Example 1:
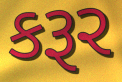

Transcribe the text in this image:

કરૂર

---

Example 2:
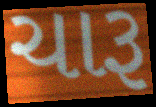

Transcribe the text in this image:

ચારૂ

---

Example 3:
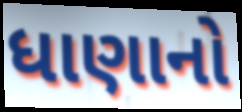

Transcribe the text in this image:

ધાણાનો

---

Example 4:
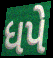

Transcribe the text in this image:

ધપે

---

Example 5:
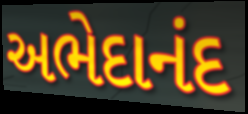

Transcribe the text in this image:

અભેદાનંદ